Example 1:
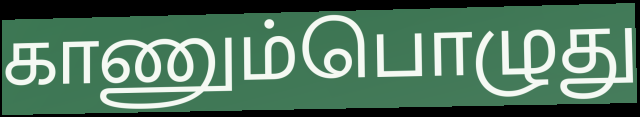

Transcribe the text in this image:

காணும்பொழுது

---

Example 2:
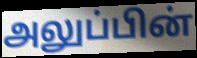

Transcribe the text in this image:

அலுப்பின்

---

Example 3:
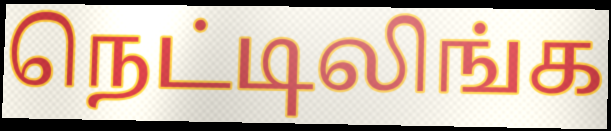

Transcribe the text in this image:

நெட்டிலிங்க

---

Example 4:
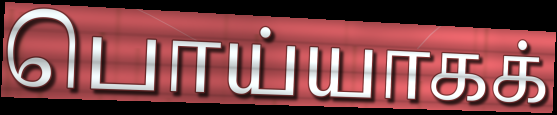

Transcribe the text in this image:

பொய்யாகக்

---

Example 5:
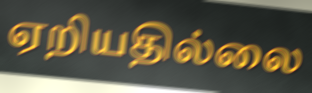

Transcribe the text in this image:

ஏறியதில்லை